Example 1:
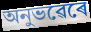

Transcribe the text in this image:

অনুভৱেৰে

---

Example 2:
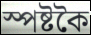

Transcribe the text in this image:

স্পষ্টকৈ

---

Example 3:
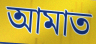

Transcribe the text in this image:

আমাত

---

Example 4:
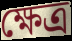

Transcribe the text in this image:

ক্ষেত্ৰ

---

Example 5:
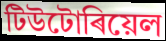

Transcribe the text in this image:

টিউটোৰিয়েল